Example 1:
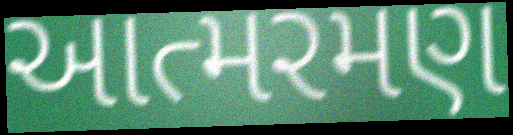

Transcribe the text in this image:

આત્મરમણ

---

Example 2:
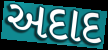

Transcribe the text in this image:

અદાદ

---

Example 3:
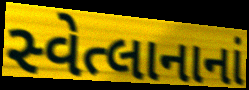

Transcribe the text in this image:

સ્વેત્લાનાનાં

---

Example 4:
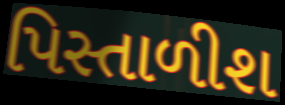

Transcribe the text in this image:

પિસ્તાળીશ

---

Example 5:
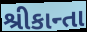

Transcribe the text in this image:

શ્રીકાન્તા